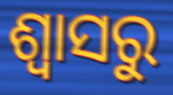
ଶ୍ୱାସରୁ